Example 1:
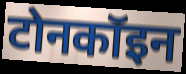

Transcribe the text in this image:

टोनकॉइन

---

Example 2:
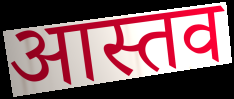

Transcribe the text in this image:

आस्तव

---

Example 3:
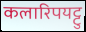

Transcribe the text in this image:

कलारिपयट्टु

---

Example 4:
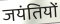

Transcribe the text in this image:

जयंतियों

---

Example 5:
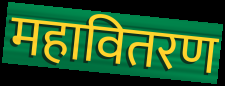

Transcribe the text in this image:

महावितरण